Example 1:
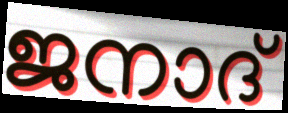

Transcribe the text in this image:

ജനാദ്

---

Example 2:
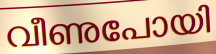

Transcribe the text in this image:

വീണുപോയി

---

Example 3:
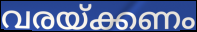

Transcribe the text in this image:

വരയ്ക്കണം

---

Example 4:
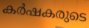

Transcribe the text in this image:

കർഷകരുടെ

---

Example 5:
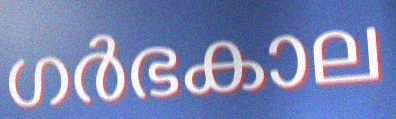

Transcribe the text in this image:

ഗർഭകാല